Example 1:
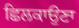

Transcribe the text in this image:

ਛਿਲਕਾਉਣਾ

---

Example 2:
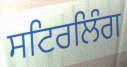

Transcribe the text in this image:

ਸਟਿਰਲਿੰਗ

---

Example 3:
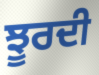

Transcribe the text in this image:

ਝੂਰਦੀ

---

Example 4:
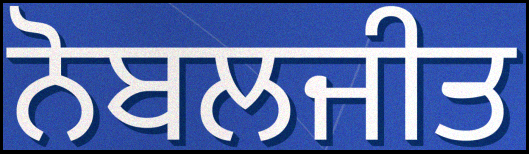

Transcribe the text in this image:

ਨੋਬਲਜੀਤ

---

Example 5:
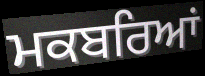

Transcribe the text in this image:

ਮਕਬਰਿਆਂ